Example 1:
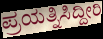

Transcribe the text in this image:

ಪ್ರಯತ್ನಿಸಿದ್ದೀರಿ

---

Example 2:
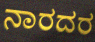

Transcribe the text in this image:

ನಾರದರ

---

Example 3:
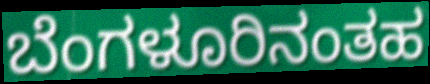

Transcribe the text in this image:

ಬೆಂಗಳೂರಿನಂತಹ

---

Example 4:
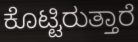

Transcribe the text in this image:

ಕೊಟ್ಟಿರುತ್ತಾರೆ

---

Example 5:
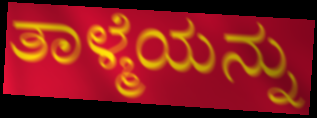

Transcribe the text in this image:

ತಾಳ್ಮೆಯನ್ನು